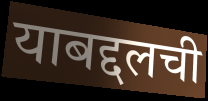
याबद्दलची